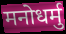
मनोधर्मु